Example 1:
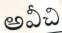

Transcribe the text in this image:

అవీచి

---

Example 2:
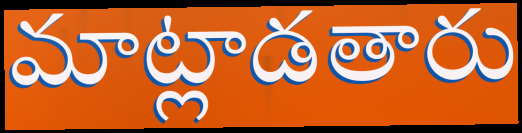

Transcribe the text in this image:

మాట్లాడతారు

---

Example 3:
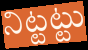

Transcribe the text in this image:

నిట్టట్టు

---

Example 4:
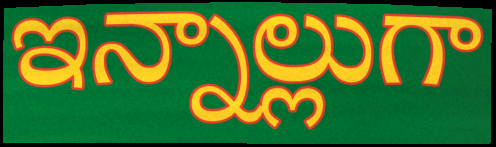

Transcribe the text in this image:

ఇన్నాల్లుగా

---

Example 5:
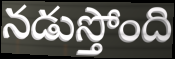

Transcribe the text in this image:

నడుస్తోంది